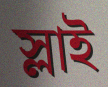
স্লাই